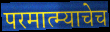
परमात्म्याचेच